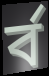
র্ব